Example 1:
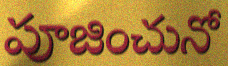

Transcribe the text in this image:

పూజించునో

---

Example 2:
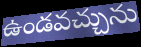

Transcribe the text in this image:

ఉండవచ్చును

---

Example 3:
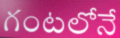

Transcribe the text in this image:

గంటలోనే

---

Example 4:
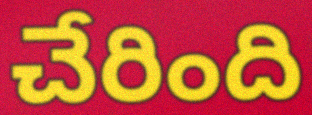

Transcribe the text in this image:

చేరింది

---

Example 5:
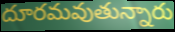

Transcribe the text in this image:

దూరమవుతున్నారు